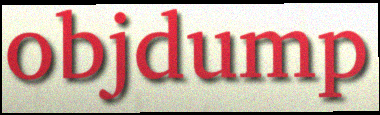
objdump